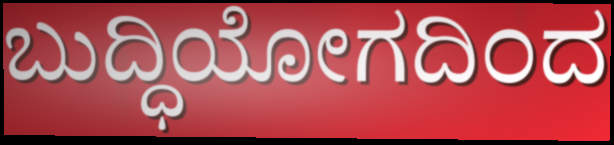
ಬುದ್ಧಿಯೋಗದಿಂದ